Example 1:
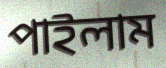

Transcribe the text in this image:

পাইলাম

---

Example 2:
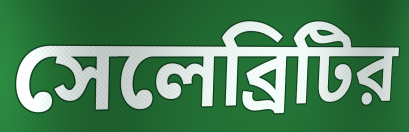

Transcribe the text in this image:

সেলেব্রিটির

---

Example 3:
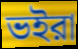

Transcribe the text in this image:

ভইরা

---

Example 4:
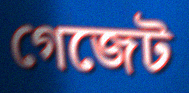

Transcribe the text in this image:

গেজেট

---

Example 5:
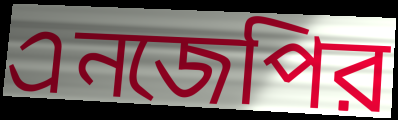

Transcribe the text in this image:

এনজেপির